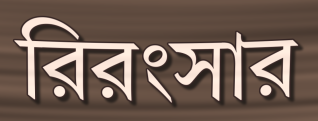
রিরংসার